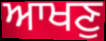
ਆਖਣੁ